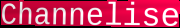
Channelise